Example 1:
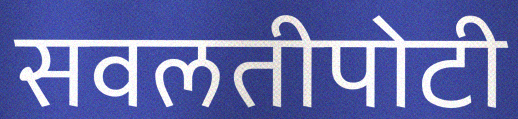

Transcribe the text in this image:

सवलतीपोटी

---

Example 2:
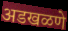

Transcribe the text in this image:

अडखळणे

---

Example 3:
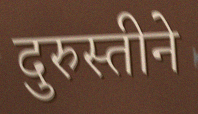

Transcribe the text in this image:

दुरुस्तीने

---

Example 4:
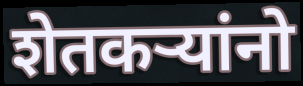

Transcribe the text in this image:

शेतकऱ्यांनो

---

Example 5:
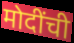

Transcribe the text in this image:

मोदींची